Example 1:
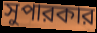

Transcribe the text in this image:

সুপারকার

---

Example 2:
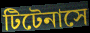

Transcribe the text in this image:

টিটেনাসে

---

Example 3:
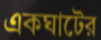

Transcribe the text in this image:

একঘাটের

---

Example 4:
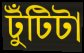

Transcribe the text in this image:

টুঁটিটা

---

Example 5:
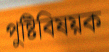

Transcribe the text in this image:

পুষ্টিবিষয়ক